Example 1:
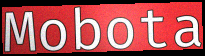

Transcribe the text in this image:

Mobota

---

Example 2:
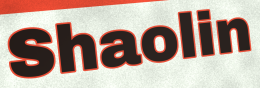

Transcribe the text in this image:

Shaolin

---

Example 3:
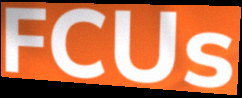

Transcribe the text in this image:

FCUs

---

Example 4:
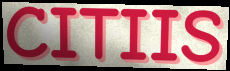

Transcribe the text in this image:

CITIIS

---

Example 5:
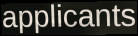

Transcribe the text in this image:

applicants